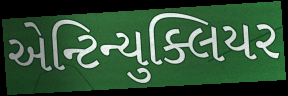
એન્ટિન્યુક્લિયર